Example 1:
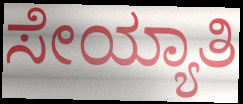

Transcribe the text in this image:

ಸೇಯ್ಯಾತಿ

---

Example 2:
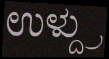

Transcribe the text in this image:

ಉಳ್ದ್ರು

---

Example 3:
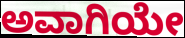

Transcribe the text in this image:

ಅವಾಗಿಯೇ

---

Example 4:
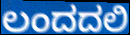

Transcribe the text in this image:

ಲಂದದಲಿ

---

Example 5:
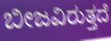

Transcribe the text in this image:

ಬೀಜವಿರುತ್ತದೆ